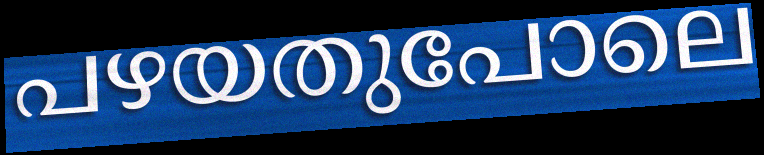
പഴയതുപോലെ